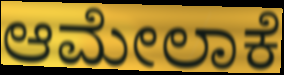
ಆಮೇಲಾಕೆ